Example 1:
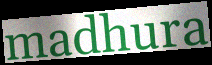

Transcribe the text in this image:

madhura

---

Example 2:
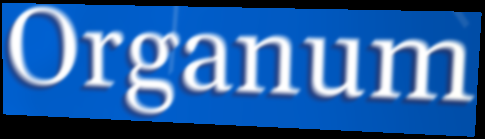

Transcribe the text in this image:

Organum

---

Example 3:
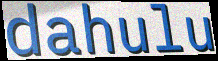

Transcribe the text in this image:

dahulu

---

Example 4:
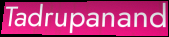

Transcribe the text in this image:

Tadrupanand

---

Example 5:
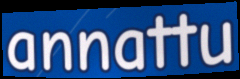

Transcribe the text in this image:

annattu